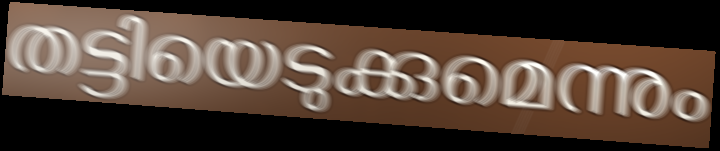
തട്ടിയെടുക്കുമെന്നും